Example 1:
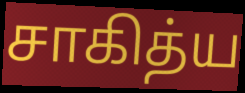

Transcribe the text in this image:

சாகித்ய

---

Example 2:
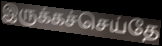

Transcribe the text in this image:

இருக்கச்செய்தே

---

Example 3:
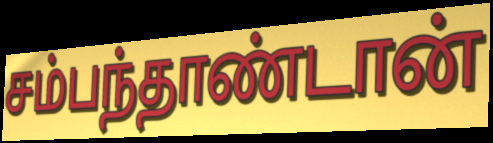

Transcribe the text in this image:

சம்பந்தாண்டான்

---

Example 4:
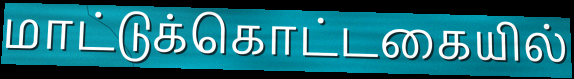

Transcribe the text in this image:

மாட்டுக்கொட்டகையில்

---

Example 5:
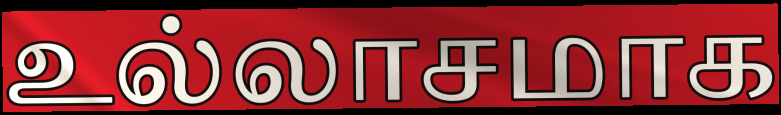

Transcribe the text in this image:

உல்லாசமாக